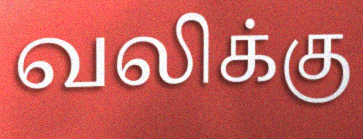
வலிக்கு